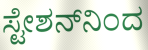
ಸ್ಟೇಶನ್‌ನಿಂದ